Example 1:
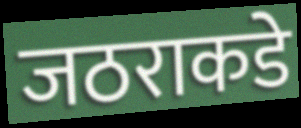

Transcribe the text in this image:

जठराकडे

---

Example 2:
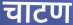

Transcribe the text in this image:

चाटण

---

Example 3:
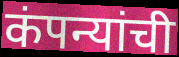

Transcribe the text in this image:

कंपन्यांची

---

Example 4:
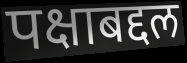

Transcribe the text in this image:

पक्षाबद्दल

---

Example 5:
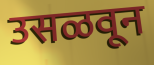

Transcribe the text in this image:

उसळवून